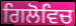
ਗਿਲੋਵਿਚ